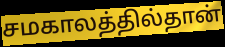
சமகாலத்தில்தான்